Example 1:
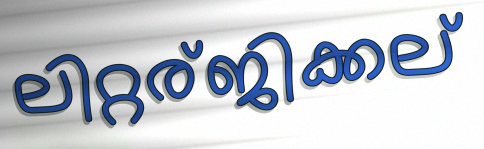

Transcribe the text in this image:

ലിറ്റര്ജിക്കല്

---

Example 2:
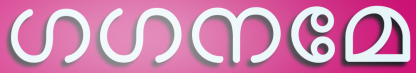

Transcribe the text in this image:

ഗഗനമേ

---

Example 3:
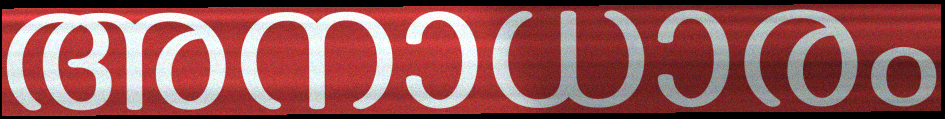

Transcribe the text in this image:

അനാധാരം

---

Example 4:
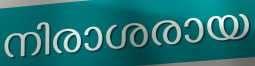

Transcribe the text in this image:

നിരാശരായ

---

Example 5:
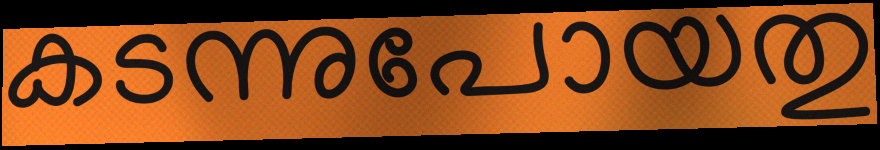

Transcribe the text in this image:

കടന്നുപോയതു